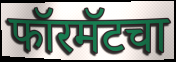
फॉरमॅटचा